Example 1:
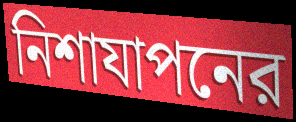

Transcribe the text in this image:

নিশাযাপনের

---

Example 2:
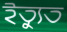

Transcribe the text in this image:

ইত্যুত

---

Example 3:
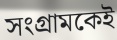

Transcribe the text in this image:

সংগ্রামকেই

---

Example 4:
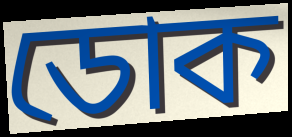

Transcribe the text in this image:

ডোক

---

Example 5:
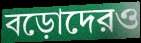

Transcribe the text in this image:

বড়োদেরও